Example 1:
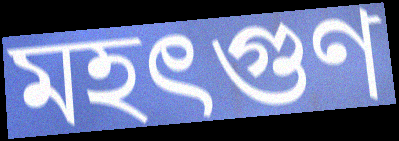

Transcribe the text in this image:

মহৎগুণ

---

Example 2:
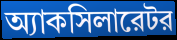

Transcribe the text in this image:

অ্যাকসিলারেটর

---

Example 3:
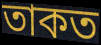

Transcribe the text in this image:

তাকত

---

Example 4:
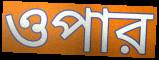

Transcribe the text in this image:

ওপার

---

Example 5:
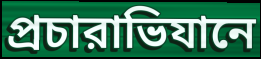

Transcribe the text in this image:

প্রচারাভিযানে